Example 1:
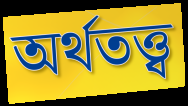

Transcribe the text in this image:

অৰ্থতত্ত্ব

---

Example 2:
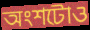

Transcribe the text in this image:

অংশটোও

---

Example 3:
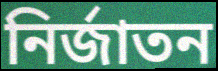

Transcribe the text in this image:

নিৰ্জাতন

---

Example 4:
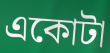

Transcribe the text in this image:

একোটা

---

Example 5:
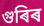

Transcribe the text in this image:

গুৰিৰ